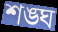
শঙ্ঘ